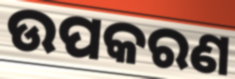
ଉପକରଣ